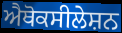
ਐਥੋਕਸੀਲੇਸ਼ਨ